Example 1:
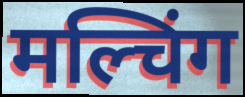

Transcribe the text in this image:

मल्चिंग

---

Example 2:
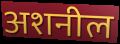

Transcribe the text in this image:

अशनील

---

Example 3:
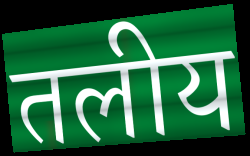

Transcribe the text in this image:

तलीय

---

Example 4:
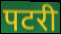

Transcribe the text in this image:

पटरी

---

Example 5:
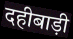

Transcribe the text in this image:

दहीबाड़ी